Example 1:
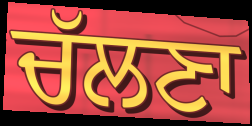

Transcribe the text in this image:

ਚੱਲਣਾ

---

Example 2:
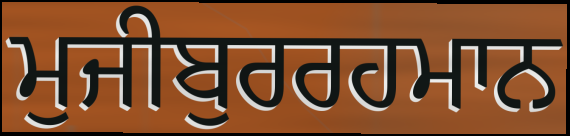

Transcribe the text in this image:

ਮੁਜੀਬੁਰਰਹਮਾਨ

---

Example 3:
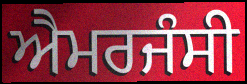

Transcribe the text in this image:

ਐਮਰਜੰਸੀ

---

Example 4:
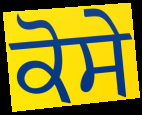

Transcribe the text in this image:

ਕੋਸੇ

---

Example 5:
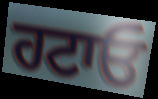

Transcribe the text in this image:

ਹਟਾਓ